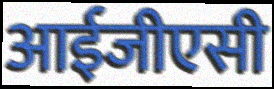
आईजीएसी